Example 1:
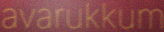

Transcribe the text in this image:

avarukkum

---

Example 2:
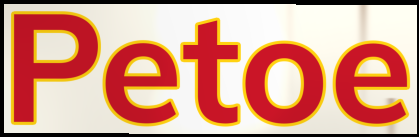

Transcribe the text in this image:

Petoe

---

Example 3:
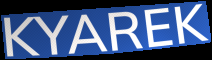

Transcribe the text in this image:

KYAREK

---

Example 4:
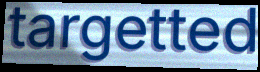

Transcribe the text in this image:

targetted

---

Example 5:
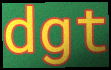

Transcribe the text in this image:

dgt